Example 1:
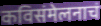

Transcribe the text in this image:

कविसंमेलनाचं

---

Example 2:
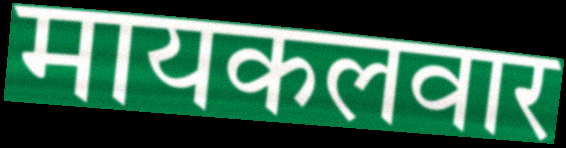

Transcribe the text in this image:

मायकलवार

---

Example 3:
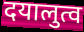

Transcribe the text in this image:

दयालुत्व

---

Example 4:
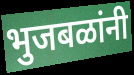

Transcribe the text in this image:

भुजबळांनी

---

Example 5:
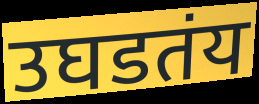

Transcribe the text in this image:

उघडतंय